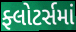
ફ્લોટર્સમાં